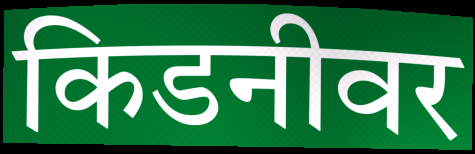
किडनीवर